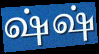
ஷ்ஷ்